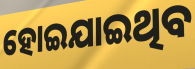
ହୋଇଯାଇଥିବ